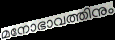
മനോഭാവത്തിനും